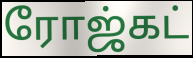
ரோஜ்கட்